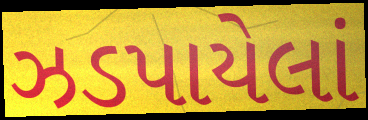
ઝડપાયેલાં